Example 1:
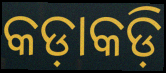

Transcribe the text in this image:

କଡ଼ାକଡ଼ି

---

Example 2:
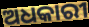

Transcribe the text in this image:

ଅଧକାରୀ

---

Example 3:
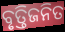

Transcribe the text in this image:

ବୃତ୍ତିଜନିତ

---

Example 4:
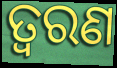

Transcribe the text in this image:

ତ୍ୱରଣ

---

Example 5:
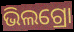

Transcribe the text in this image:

ଭିଲଗ୍ରୋ